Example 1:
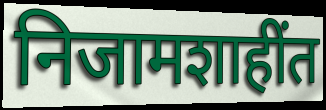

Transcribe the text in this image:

निजामशाहींत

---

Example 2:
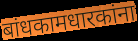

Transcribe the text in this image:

बांधकामधारकांना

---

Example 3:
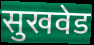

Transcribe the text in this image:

सुखवेड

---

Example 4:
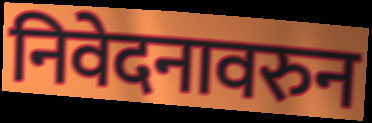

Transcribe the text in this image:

निवेदनावरुन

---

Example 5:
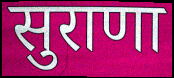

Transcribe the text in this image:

सुराणा